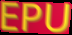
EPU